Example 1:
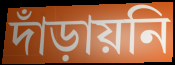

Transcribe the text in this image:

দাঁড়ায়নি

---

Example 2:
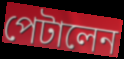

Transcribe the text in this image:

পেটালেন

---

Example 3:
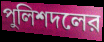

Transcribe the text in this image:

পুলিশদলের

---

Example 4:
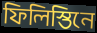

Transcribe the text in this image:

ফিলিস্তিনে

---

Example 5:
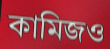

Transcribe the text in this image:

কামিজও